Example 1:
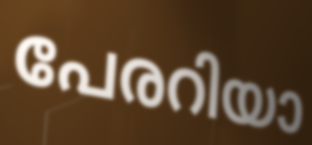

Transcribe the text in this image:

പേരറിയാ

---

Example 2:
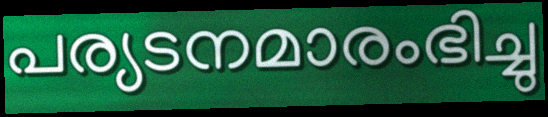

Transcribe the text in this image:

പര്യടനമാരംഭിച്ചു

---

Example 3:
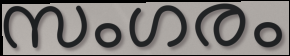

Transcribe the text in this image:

സംഗരം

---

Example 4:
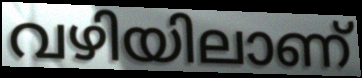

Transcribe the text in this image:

വഴിയിലാണ്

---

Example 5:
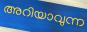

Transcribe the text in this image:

അറിയാവുന്ന